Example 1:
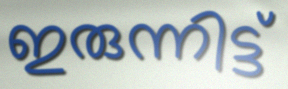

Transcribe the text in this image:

ഇരുന്നിട്ട്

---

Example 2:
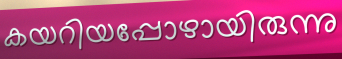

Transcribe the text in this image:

കയറിയപ്പോഴായിരുന്നു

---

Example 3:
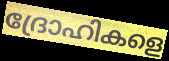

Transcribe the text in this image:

ദ്രോഹികളെ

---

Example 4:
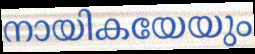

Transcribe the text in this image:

നായികയേയും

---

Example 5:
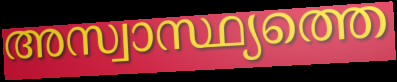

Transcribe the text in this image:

അസ്വാസ്ഥ്യത്തെ